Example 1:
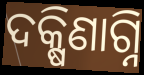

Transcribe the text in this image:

ଦକ୍ଷିଣାଗ୍ନି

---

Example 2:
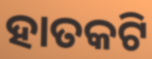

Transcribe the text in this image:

ହାତକଟି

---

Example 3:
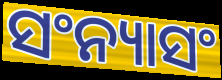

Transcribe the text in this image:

ସଂନ୍ୟାସଂ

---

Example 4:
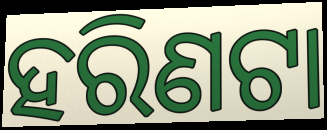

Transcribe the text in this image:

ହରିଣଟା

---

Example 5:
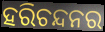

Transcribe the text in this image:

ହରିଚନ୍ଦନର